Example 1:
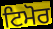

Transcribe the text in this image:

ਟਿਮੋਰ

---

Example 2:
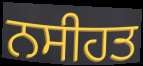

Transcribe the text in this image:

ਨਸੀਹਤ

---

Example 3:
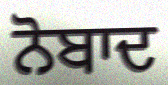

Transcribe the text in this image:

ਨੋਬਾਦ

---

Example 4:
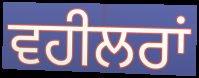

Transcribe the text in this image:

ਵਹੀਲਰਾਂ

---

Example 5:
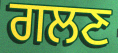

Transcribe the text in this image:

ਗਲਣ